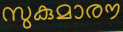
സുകുമാരൗ